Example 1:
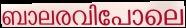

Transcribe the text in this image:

ബാലരവിപോലെ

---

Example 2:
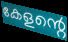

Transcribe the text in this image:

കേളന്റെ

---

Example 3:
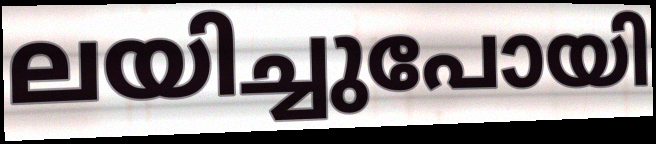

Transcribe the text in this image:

ലയിച്ചുപോയി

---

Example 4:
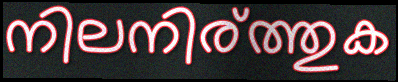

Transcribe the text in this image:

നിലനിര്ത്തുക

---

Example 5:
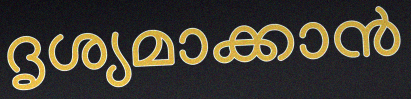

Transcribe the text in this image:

ദൃശ്യമാക്കാൻ